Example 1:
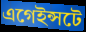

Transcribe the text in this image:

এগেইন্সটে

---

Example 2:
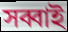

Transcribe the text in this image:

সব্বাই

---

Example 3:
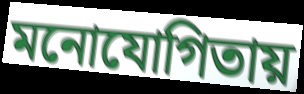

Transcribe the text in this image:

মনোযোগিতায়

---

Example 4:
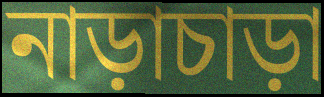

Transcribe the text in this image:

নাড়াচাড়া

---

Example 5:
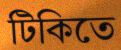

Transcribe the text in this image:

টিকিতে